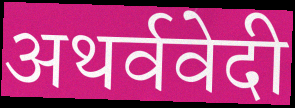
अथर्ववेदी